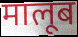
मालूब